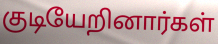
குடியேறினார்கள்